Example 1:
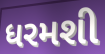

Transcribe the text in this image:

ધરમશી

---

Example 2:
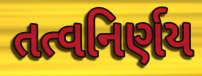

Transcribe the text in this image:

તત્વનિર્ણય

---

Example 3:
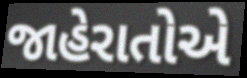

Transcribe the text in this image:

જાહેરાતોએ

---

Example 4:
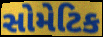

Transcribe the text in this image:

સોમેટિક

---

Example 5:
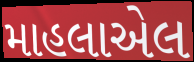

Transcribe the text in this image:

માહલાએલ